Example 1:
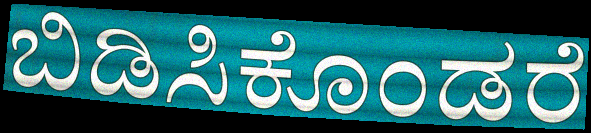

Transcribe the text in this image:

ಬಿಡಿಸಿಕೊಂಡರೆ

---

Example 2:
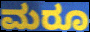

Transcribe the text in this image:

ಮರೂ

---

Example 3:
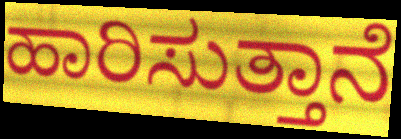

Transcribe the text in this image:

ಹಾರಿಸುತ್ತಾನೆ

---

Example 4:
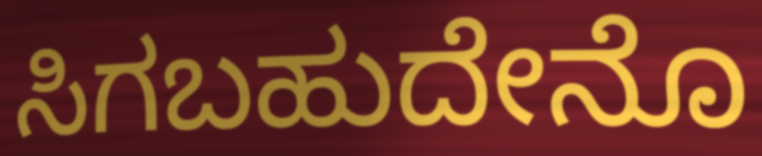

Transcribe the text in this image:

ಸಿಗಬಹುದೇನೊ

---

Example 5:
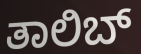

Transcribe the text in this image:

ತಾಲಿಬ್